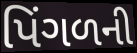
પિંગળની